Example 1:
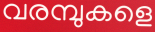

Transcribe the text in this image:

വരമ്പുകളെ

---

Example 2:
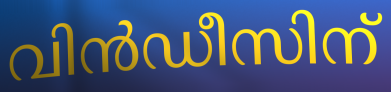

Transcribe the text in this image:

വിൻഡീസിന്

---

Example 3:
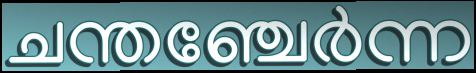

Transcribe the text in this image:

ചന്തഞ്ചേർന്ന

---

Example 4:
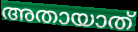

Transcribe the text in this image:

അതായാത്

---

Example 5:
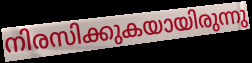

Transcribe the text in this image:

നിരസിക്കുകയായിരുന്നു